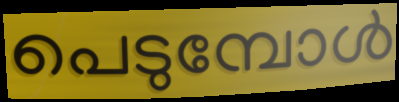
പെടുമ്പോൾ